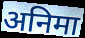
अनिमा